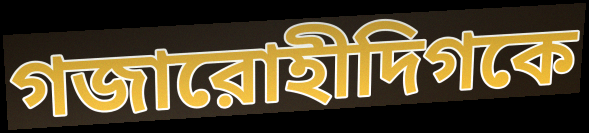
গজারোহীদিগকে